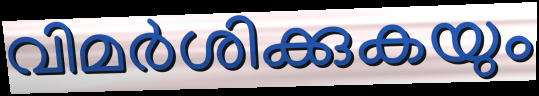
വിമർശിക്കുകയും